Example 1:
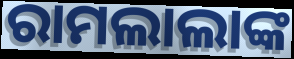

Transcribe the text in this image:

ରାମଲାଲାଙ୍କ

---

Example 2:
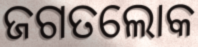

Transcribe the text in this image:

ଜଗତଲୋକ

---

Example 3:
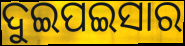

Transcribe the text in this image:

ଦୁଇପଇସାର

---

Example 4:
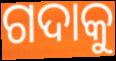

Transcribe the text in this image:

ଗଦାକୁ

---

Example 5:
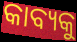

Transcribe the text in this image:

କାବ୍ୟକୁ